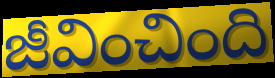
జీవించింది